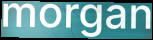
morgan